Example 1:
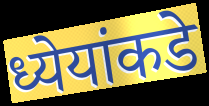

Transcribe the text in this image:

ध्येयांकडे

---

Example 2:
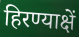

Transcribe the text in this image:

हिरण्याक्षें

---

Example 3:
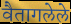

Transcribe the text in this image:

वैतागलेले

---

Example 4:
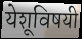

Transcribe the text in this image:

येशूविषयी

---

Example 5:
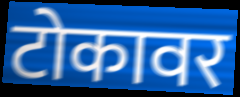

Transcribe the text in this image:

टोकावर